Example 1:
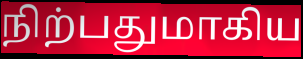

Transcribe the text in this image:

நிற்பதுமாகிய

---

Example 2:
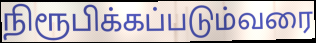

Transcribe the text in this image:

நிரூபிக்கப்படும்வரை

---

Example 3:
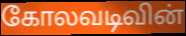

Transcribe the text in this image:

கோலவடிவின்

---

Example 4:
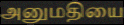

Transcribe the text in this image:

அனுமதியை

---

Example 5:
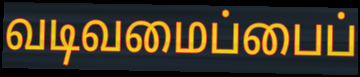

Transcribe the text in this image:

வடிவமைப்பைப்